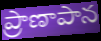
ప్రాణాపాన